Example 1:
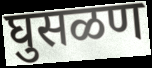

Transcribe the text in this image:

घुसळण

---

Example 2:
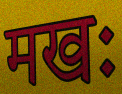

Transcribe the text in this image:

मखः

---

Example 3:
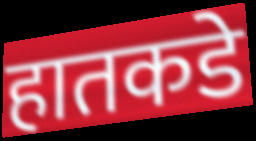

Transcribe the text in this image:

हातकडे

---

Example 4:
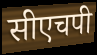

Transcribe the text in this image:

सीएचपी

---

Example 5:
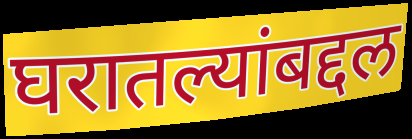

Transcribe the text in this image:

घरातल्यांबद्दल